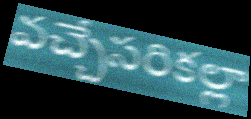
వచ్చేసరికల్లా